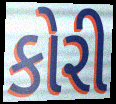
કોરી